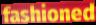
fashioned